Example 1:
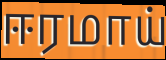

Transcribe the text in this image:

ஈரமாய்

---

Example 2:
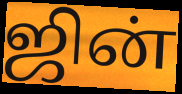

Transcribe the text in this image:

ஜின்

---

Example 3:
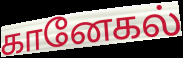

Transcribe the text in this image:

கானேகல்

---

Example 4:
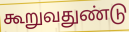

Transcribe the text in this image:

கூறுவதுண்டு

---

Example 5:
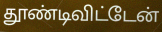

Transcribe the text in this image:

தூண்டிவிட்டேன்